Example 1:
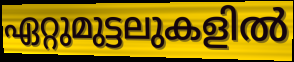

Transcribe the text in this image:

ഏറ്റുമുട്ടലുകളിൽ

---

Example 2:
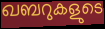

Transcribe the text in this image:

ഖബറുകളുടെ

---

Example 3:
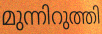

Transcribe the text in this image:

മുന്നിറുത്തി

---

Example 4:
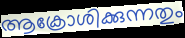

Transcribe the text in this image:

ആക്രോശിക്കുന്നതും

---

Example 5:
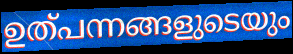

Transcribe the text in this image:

ഉത്പന്നങ്ങളുടെയും